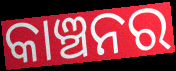
କାଞ୍ଚନର